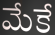
మేకే